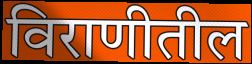
विराणीतील